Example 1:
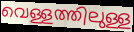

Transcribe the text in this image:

വെള്ളത്തിലുള്ള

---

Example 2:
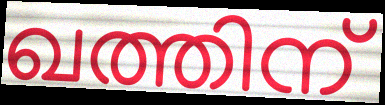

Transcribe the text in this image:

ഖത്തിന്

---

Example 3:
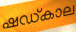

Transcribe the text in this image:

ഷഡ്കാല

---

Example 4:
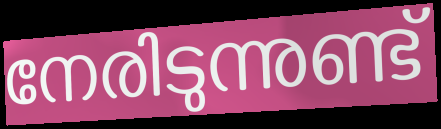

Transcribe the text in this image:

നേരിടുന്നുണ്ട്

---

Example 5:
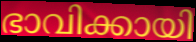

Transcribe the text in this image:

ഭാവിക്കായി